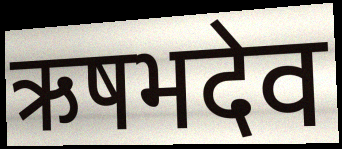
ऋषभदेव